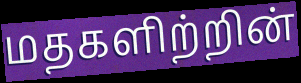
மதகளிற்றின்